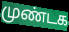
முண்டக